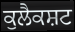
ਕੁਲੈਕਸ਼ਟ